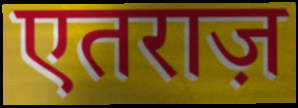
एतराज़